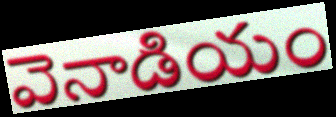
వెనాడియం